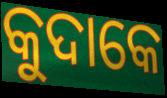
କୁଦାକେ